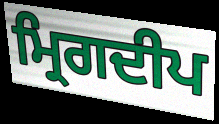
ਮ੍ਰਿਗਦੀਪ